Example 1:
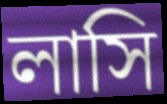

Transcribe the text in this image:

লাসি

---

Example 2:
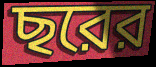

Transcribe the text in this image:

ছরের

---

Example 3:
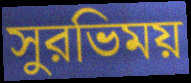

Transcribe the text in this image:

সুরভিময়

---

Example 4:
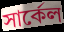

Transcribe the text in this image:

সার্কেল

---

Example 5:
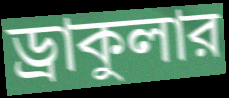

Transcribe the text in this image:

ড্রাকুলার